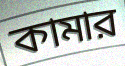
কামার